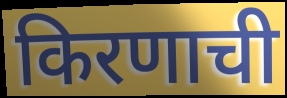
किरणाची